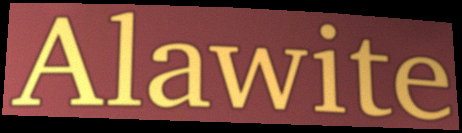
Alawite